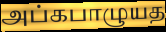
அப்கபாழுயத